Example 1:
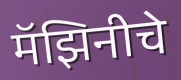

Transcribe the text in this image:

मॅझिनीचे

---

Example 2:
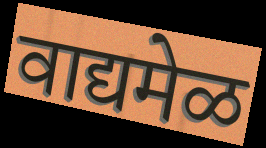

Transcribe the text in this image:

वाद्यमेळ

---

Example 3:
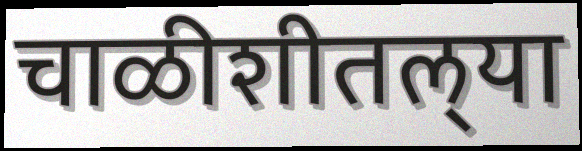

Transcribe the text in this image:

चाळीशीतल्या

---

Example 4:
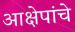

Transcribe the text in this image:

आक्षेपांचे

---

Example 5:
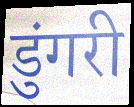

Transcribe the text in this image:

डुंगरी